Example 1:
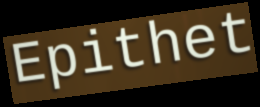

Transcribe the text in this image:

Epithet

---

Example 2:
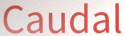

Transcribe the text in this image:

Caudal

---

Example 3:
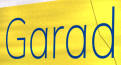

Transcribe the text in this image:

Garad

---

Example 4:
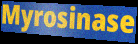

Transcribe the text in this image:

Myrosinase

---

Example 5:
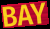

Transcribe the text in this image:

BAY